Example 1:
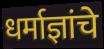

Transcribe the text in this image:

धर्माज्ञांचे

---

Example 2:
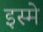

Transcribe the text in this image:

इस्मे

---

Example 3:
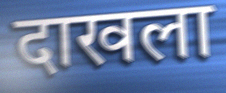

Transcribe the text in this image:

दाखला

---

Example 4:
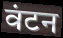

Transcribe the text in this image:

वंटन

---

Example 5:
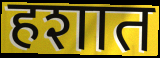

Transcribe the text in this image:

हशात